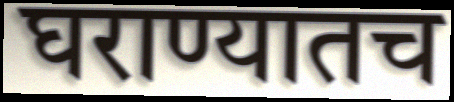
घराण्यातच